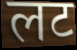
लट